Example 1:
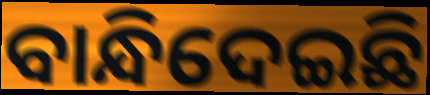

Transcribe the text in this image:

ବାନ୍ଧିଦେଇଛି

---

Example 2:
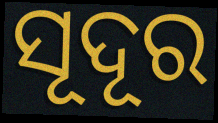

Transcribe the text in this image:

ସୂଦୂର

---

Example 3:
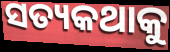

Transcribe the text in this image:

ସତ୍ୟକଥାକୁ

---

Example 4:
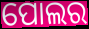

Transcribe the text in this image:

ପୋଲର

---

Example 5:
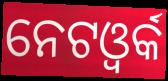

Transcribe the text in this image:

ନେଟଓ୍ବର୍କ